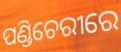
ପଣ୍ଡିଚେରୀରେ